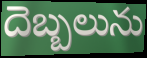
దెబ్బలును